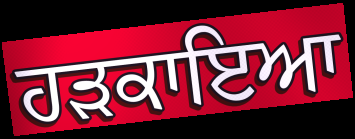
ਹੜਕਾਇਆ